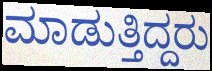
ಮಾಡುತ್ತಿದ್ದರು